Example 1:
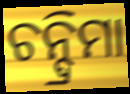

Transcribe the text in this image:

ଚନ୍ଦ୍ରିମା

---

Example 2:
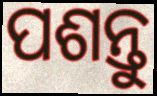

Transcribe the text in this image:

ପଶନ୍ତୁ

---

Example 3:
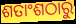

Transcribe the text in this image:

ଶତାଂଶଠାରୁ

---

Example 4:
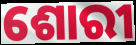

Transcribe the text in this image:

ଶୋରୀ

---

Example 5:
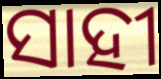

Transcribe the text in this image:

ସାହୀ